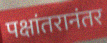
पक्षांतरानंतर